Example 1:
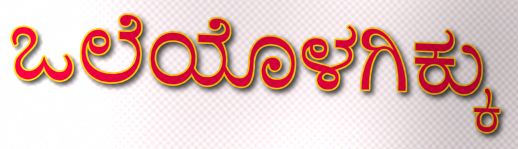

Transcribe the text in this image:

ಒಲೆಯೊಳಗಿಕ್ಕು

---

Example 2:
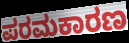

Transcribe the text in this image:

ಪರಮಕಾರಣ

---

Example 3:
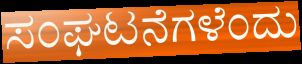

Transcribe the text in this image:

ಸಂಘಟನೆಗಳೆಂದು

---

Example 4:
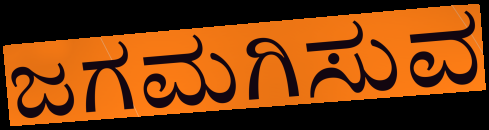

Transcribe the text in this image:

ಜಗಮಗಿಸುವ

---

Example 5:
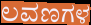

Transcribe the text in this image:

ಲವಣಗಳ